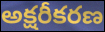
అక్షరీకరణ